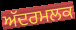
ਅੱਦਰਮਲਕ